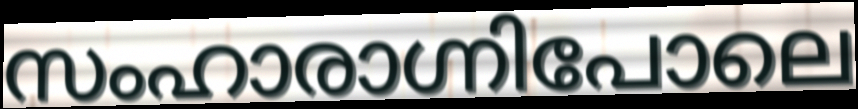
സംഹാരാഗ്നിപോലെ